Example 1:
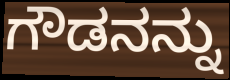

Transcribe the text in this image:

ಗೌಡನನ್ನು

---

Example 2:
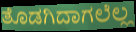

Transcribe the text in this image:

ತೊಡಗಿದಾಗಲೆಲ್ಲ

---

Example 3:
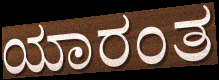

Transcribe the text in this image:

ಯಾರಂತ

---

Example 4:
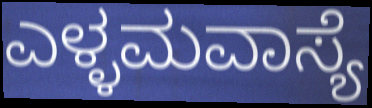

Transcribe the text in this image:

ಎಳ್ಳಮವಾಸ್ಯೆ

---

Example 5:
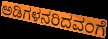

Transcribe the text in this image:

ಅಡಿಗಳನರಿದವಂಗೆ